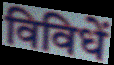
विविधें